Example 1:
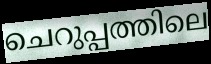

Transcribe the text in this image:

ചെറുപ്പത്തിലെ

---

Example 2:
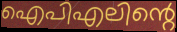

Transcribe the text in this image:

ഐപിഎലിന്റെ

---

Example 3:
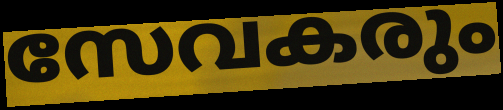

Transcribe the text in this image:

സേവകരും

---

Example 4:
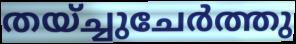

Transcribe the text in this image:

തയ്ച്ചുചേർത്തു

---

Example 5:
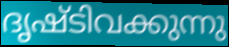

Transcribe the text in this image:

ദൃഷ്ടിവക്കുന്നു